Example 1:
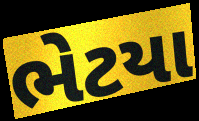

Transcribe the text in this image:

ભેટયા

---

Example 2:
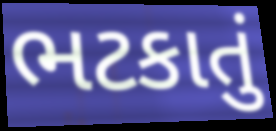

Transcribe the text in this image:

ભટકાતું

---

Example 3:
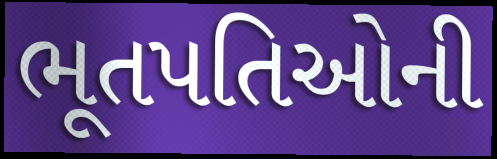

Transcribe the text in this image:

ભૂતપતિઓની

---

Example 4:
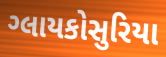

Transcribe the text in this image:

ગ્લાયકોસુરિયા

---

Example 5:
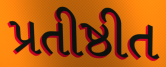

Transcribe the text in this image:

પ્રતીષ્ઠીત